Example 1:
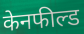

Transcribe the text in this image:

केनफील्ड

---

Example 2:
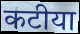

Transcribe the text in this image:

कटीया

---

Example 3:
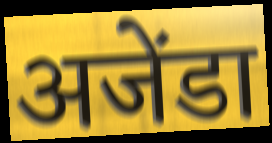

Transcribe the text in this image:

अजेंडा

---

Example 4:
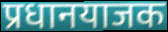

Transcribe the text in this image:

प्रधानयाजक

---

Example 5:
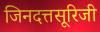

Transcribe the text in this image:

जिनदत्तसूरिजी